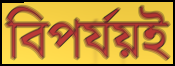
বিপর্যয়ই